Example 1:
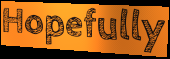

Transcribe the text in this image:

Hopefully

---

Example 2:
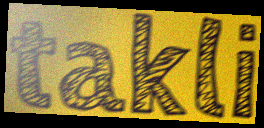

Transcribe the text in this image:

takli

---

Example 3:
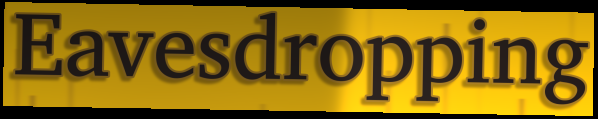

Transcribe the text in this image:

Eavesdropping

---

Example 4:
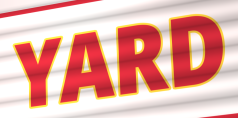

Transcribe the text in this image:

YARD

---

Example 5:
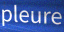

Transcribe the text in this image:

pleure